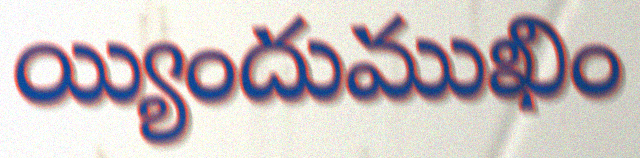
య్యిందుముఖిం